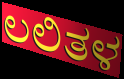
ಲಲಿತಳ